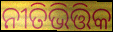
ନୀତିଭିତ୍ତିକ